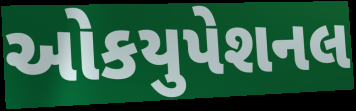
ઓકયુપેશનલ